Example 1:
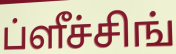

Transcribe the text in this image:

ப்ளீச்சிங்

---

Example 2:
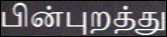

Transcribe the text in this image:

பின்புறத்து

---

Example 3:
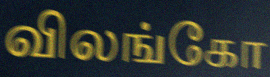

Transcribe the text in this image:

விலங்கோ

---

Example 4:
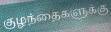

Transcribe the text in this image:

குழந்தைகளுக்கு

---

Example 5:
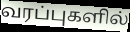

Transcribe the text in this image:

வரப்புகளில்